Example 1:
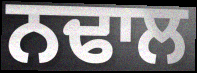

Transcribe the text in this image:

ਨਢਾਲ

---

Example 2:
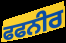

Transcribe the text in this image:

ਫਫਨੀਰ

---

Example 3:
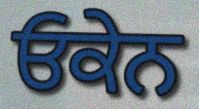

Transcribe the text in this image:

ਓਕੇਨ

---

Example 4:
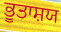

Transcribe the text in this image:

ਭੂਤਾਸ਼ਯ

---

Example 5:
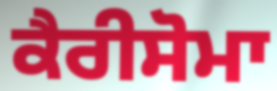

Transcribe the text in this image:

ਕੈਰੀਸੋਮਾ